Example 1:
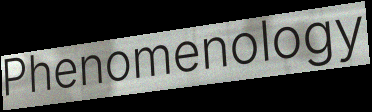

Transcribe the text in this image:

Phenomenology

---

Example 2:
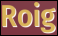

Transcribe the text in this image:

Roig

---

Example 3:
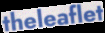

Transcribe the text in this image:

theleaflet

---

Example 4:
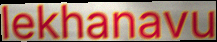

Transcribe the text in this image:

lekhanavu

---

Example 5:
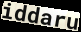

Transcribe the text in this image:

iddaru